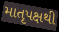
માતૃપક્ષથી